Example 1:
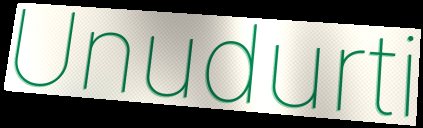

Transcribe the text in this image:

Unudurti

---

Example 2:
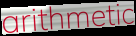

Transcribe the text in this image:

arithmetic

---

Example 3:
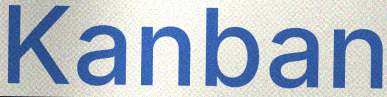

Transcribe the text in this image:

Kanban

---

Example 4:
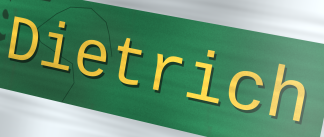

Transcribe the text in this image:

Dietrich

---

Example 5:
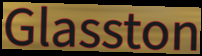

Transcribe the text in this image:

Glasston